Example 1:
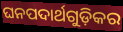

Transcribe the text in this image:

ଘନପଦାର୍ଥଗୁଡ଼ିକର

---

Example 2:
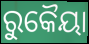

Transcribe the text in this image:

ରୁକୈୟା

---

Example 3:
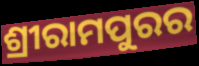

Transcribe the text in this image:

ଶ୍ରୀରାମପୁରର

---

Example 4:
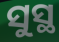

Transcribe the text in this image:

ସୁସ୍ଥ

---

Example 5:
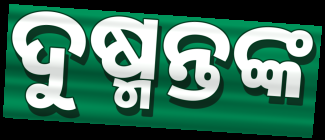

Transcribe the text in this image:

ଦୁଷ୍ମନ୍ତଙ୍କ